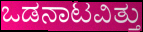
ಒಡನಾಟವಿತ್ತು